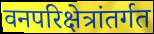
वनपरिक्षेत्रांतर्गत